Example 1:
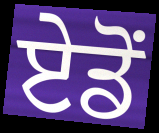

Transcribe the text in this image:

ਏਡੋਂ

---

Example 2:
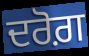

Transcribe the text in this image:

ਦਰੋਗ਼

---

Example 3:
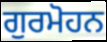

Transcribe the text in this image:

ਗੁਰਮੋਹਨ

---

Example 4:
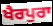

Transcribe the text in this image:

ਖੈਰਪੁਰਾ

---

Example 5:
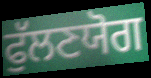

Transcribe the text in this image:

ਫੁੱਲਣਯੋਗ